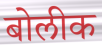
बोलीक